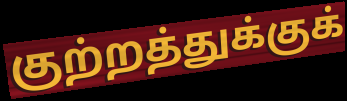
குற்றத்துக்குக்